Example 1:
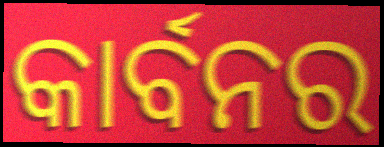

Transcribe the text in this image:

କାର୍ବନର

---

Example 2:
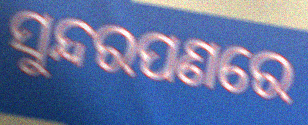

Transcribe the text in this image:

ସୁନ୍ଦରପଣରେ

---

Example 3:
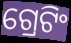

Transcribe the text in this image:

ଗ୍ରେଟିଂ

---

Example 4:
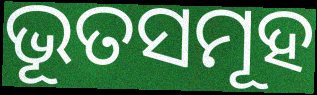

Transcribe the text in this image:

ଭୂତସମୂହ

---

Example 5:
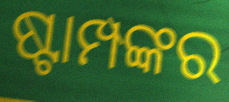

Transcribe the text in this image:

ଷ୍ଟାମ୍ପଙ୍କର